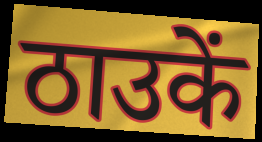
ठाउकें